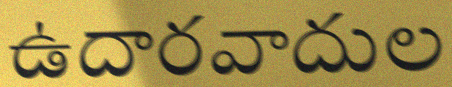
ఉదారవాదుల